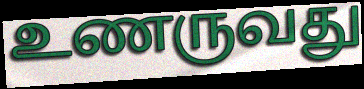
உணருவது